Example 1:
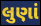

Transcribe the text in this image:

લુણાં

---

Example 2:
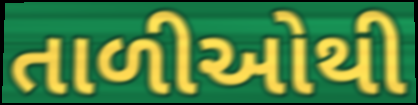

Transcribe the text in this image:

તાળીઓથી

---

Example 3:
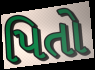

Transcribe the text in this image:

પિતો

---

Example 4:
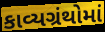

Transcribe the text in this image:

કાવ્યગ્રંથોમાં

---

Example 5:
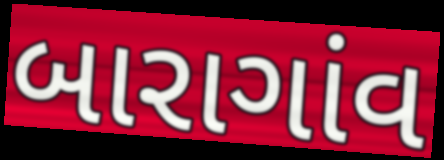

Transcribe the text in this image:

બારાગાંવ